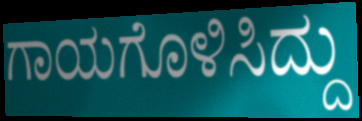
ಗಾಯಗೊಳಿಸಿದ್ದು